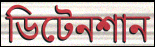
ডিটেনশান